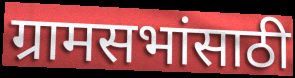
ग्रामसभांसाठी